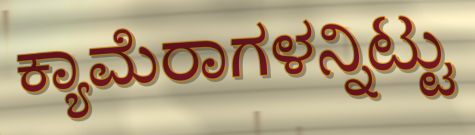
ಕ್ಯಾಮೆರಾಗಳನ್ನಿಟ್ಟು